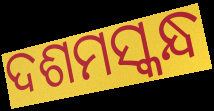
ଦଶମସ୍କନ୍ଧ